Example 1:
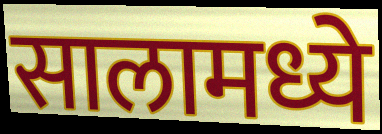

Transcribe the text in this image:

सालामध्ये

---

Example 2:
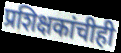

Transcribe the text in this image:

प्रशिक्षकांचीही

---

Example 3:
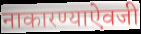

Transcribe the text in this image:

नाकारण्याऐवजी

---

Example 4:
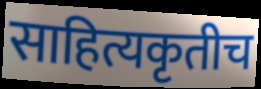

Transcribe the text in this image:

साहित्यकृतीच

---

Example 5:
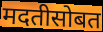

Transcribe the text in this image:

मदतीसोबत